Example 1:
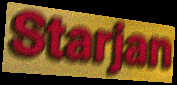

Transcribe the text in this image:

Starjan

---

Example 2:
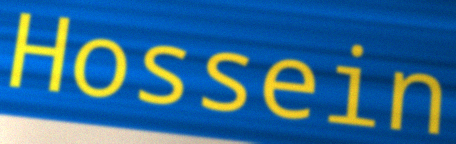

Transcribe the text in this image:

Hossein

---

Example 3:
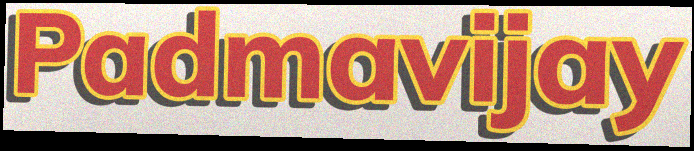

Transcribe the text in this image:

Padmavijay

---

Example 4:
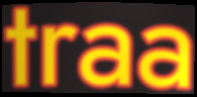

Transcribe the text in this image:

traa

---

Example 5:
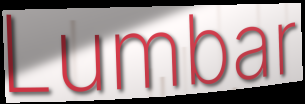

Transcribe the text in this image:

Lumbar